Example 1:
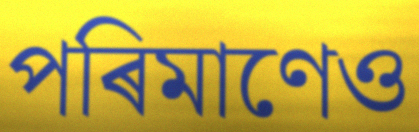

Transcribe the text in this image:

পৰিমাণেও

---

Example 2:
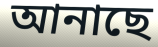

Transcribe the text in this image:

আনাছে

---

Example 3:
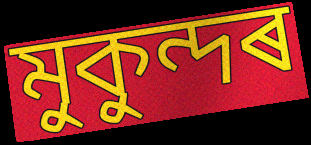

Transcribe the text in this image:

মুকুন্দৰ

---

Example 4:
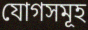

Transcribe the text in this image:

যোগসমূহ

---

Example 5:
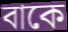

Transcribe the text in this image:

বাকে